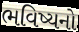
ભવિષ્યનો